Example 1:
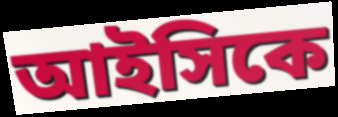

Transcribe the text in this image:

আইসিকে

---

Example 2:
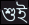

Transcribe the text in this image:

শুই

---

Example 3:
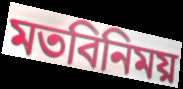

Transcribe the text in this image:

মতবিনিময়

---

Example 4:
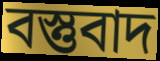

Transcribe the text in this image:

বস্তুবাদ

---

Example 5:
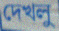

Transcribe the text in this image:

দেখলু